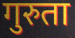
गुरुता